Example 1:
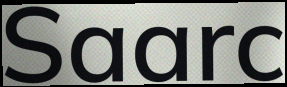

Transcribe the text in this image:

Saarc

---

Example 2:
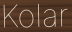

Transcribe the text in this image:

Kolar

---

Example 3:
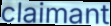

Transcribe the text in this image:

claimant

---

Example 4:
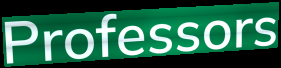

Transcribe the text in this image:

Professors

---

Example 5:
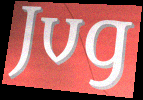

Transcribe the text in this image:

Jug